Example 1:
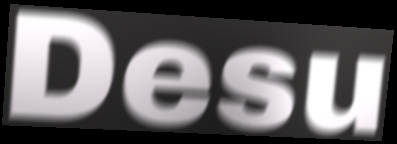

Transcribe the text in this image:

Desu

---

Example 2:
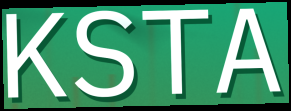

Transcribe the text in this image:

KSTA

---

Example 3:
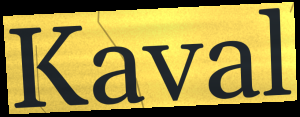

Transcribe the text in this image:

Kaval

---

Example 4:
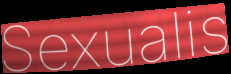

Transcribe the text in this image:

Sexualis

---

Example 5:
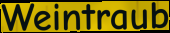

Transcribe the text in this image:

Weintraub